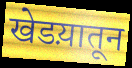
खेडय़ातून